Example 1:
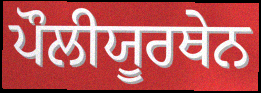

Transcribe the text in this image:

ਪੌਲੀਯੂਰਥੇਨ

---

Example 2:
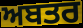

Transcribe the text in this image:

ਅਬਤਰ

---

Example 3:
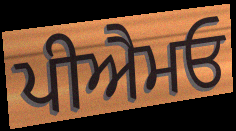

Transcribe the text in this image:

ਪੀਐਮਓ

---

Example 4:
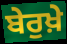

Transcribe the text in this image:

ਬੇਰੁਖ਼ੇ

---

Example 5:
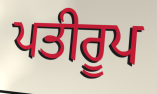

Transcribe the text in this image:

ਪਤੀਰੂਪ